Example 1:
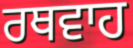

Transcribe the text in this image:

ਰਥਵਾਹ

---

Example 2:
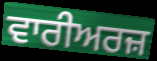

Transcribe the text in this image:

ਵਾਰੀਅਰਜ਼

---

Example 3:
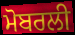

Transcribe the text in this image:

ਮੋਬਰਲੀ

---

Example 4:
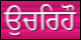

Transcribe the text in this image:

ਉਚਰਿਹੌ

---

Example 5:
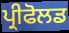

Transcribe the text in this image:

ਪ੍ਰੀਫੋਲਡ